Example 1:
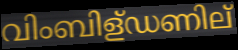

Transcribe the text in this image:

വിംബിള്ഡണില്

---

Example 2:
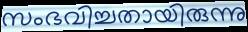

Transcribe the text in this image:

സംഭവിച്ചതായിരുന്നു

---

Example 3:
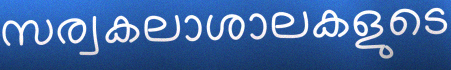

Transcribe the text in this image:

സര്വകലാശാലകളുടെ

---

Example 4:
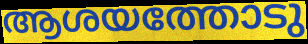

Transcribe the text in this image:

ആശയത്തോടു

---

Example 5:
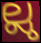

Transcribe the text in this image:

ല്ലു